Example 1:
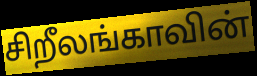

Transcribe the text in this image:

சிறீலங்காவின்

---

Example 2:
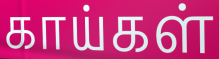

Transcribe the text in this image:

காய்கள்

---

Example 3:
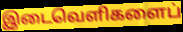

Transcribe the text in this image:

இடைவெளிகளைப்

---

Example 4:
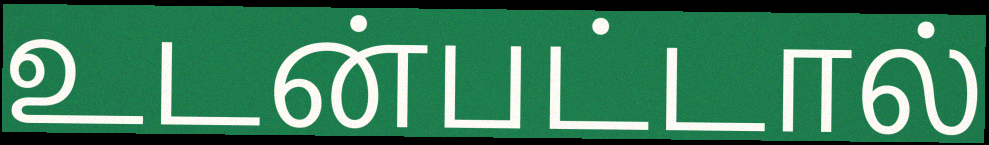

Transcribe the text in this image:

உடன்பட்டால்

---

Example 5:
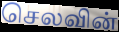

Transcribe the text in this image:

செலவின்